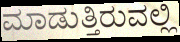
ಮಾಡುತ್ತಿರುವಲ್ಲಿ